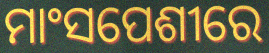
ମାଂସପେଶୀରେ